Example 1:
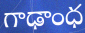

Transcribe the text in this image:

గాఢాంధ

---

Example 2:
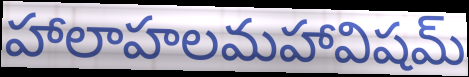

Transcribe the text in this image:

హాలాహలమహావిషమ్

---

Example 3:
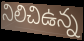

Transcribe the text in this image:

నిలిచిఉన్న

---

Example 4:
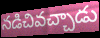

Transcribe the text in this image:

నడిచివచ్చాడు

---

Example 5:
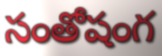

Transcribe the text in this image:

సంతోషంగ